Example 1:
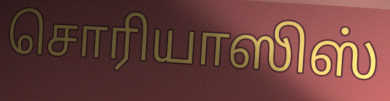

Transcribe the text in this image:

சொரியாஸிஸ்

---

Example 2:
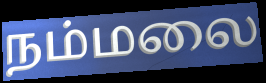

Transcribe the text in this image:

நம்மலை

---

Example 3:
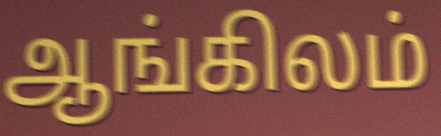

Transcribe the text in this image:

ஆங்கிலம்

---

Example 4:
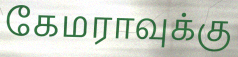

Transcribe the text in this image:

கேமராவுக்கு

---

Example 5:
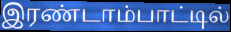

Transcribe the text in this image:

இரண்டாம்பாட்டில்